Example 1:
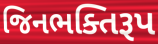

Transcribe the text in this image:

જિનભક્તિરૂપ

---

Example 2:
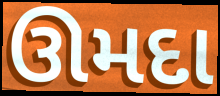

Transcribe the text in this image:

ઊમદા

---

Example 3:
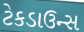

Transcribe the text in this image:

ટેકડાઉન્સ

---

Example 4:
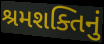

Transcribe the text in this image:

શ્રમશક્તિનું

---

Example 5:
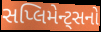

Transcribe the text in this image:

સપ્લિમેન્ટ્સનો